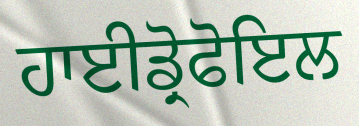
ਹਾਈਡ੍ਰੋਫੋਇਲ